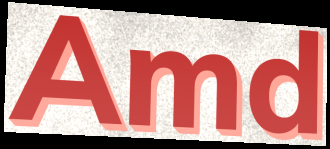
Amd